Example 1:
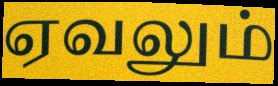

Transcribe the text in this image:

ஏவலும்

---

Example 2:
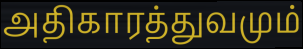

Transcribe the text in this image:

அதிகாரத்துவமும்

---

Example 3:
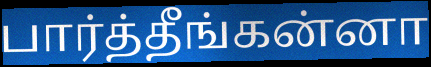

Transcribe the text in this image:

பார்த்தீங்கன்னா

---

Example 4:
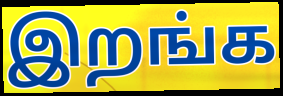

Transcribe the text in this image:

இறங்க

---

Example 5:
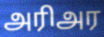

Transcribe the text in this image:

அரிஅர